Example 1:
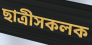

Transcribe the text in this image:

ছাত্ৰীসকলক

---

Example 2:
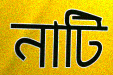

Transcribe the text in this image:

নাটি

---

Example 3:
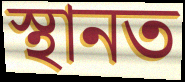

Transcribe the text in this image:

স্থানত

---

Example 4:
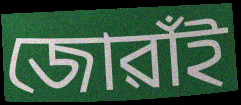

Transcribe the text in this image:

জোৱাঁই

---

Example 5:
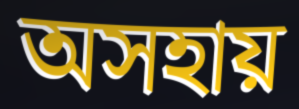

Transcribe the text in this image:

অসহায়